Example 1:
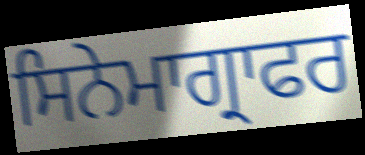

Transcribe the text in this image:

ਸਿਨੇਮਾਗ੍ਰਾਫਰ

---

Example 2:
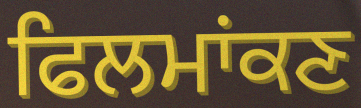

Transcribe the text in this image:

ਫਿਲਮਾਂਕਣ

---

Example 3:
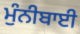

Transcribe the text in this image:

ਮੁੰਨੀਬਾਈ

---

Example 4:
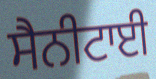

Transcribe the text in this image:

ਸੈਨੀਟਾਈ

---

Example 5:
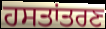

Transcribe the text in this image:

ਹਸਤਾਂਤਰਣ